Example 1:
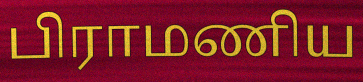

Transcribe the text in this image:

பிராமணிய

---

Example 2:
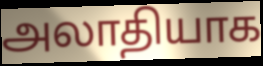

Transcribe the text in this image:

அலாதியாக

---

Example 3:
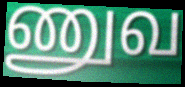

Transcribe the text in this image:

ணுவ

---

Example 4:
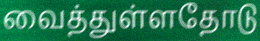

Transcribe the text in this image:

வைத்துள்ளதோடு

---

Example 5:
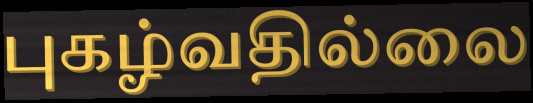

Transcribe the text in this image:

புகழ்வதில்லை